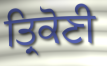
ਤ੍ਰਿਕੋਣੀ